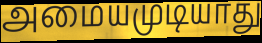
அமையமுடியாது